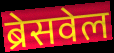
ब्रेसवेल